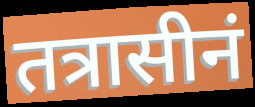
तत्रासीनं